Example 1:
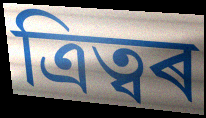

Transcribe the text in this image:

ত্ৰিত্বৰ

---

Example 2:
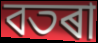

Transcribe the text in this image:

বতৰা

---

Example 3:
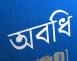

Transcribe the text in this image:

অবধি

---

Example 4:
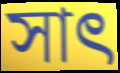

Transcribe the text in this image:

সাৎ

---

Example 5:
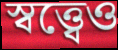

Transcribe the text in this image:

স্বত্ত্বেও